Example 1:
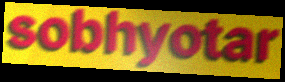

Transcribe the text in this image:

sobhyotar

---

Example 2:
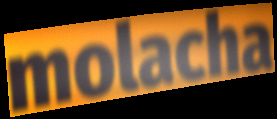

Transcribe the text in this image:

molacha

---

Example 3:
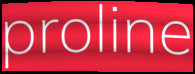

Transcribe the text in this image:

proline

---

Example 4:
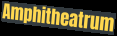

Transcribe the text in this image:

Amphitheatrum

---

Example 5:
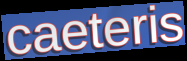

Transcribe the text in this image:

caeteris